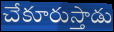
చేకూరుస్తాడు